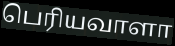
பெரியவாளா